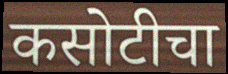
कसोटीचा